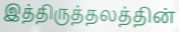
இத்திருத்தலத்தின்